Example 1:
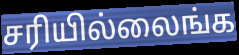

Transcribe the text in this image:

சரியில்லைங்க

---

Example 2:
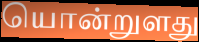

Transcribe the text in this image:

யொன்றுளது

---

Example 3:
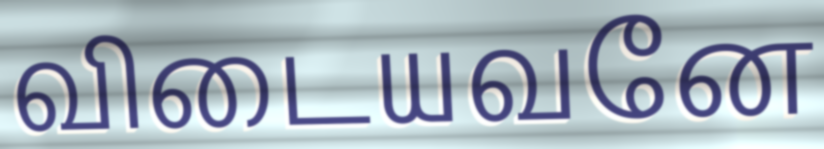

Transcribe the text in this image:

விடையவனே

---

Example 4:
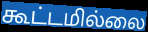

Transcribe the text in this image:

கூட்டமில்லை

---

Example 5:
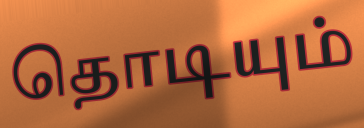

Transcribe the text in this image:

தொடியும்